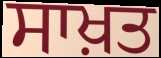
ਸਾਖ਼ਤ